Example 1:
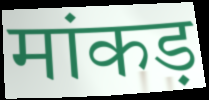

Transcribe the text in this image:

मांकड़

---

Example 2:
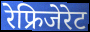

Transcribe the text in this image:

रेफ्रिजेरेट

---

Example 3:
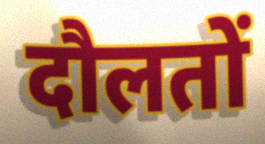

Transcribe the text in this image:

दौलतों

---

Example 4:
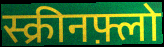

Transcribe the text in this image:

स्क्रीनफ़्लो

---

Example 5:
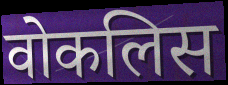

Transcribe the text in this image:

वोकलिस